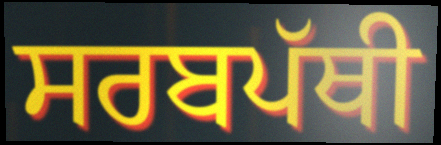
ਸਰਬਪੱਥੀ